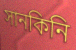
সানকিনি